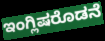
ಇಂಗ್ಲಿಷರೊಡನೆ